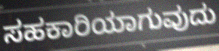
ಸಹಕಾರಿಯಾಗುವುದು